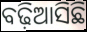
ବଢ଼ିଆସିଛି